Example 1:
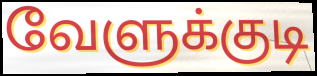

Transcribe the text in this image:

வேளுக்குடி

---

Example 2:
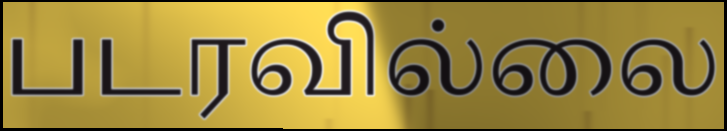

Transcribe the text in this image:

படரவில்லை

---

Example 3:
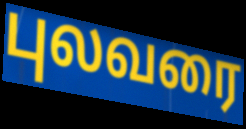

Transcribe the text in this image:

புலவரை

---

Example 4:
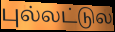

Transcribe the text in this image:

புல்லட்டுல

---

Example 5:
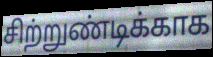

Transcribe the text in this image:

சிற்றுண்டிக்காக